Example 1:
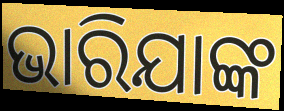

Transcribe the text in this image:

ଭାରିଯାଙ୍କ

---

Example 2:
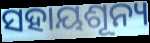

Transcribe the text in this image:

ସହାୟଶୂନ୍ୟ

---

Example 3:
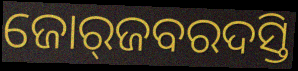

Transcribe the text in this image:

ଜୋର୍‍ଜବରଦସ୍ତି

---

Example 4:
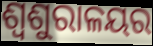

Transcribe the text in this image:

ଶ୍ୱଶୁରାଳୟର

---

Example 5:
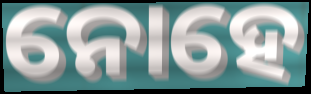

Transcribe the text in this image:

ନୋହେ